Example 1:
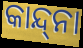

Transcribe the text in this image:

କାନ୍ଦ୍‌ନା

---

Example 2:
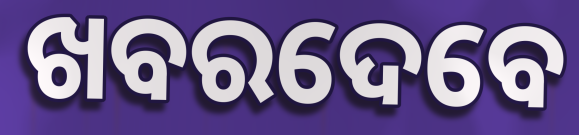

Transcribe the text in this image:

ଖବରଦେବେ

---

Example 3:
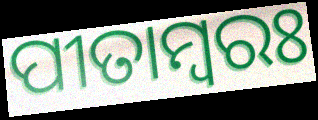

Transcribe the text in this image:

ପୀତାମ୍ୱରଃ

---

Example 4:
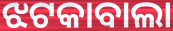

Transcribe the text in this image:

ଝଟକାବାଲା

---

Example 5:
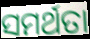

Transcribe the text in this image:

ସମର୍ଥତା